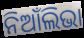
ନିଆଁଲିଭା